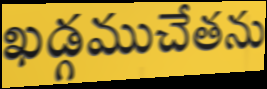
ఖడ్గముచేతను